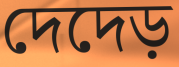
দেদেড়